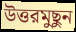
উত্তরমুছুন